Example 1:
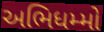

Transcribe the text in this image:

અભિધમ્મો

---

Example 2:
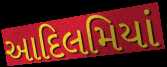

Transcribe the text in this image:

આદિલમિયાં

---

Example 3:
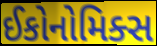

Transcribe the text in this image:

ઈકોનોમિક્સ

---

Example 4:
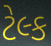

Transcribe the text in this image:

ટેલ્ક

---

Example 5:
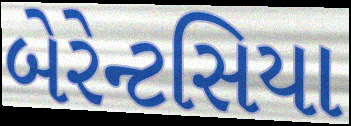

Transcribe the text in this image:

બેરેન્ટસિયા